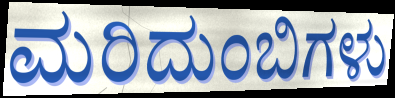
ಮರಿದುಂಬಿಗಳು